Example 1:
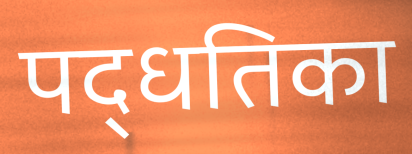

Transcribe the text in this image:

पद्धतिका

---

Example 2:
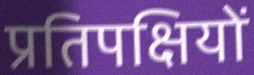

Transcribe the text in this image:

प्रतिपक्षियों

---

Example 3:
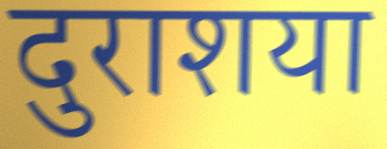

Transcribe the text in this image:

दुराशया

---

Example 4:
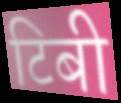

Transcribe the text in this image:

टिबी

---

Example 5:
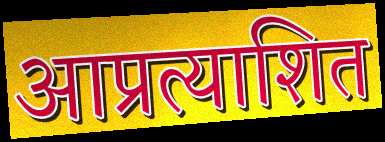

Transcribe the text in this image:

आप्रत्याशित